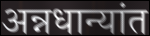
अन्नधान्यांत